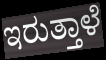
ಇರುತ್ತಾಳೆ